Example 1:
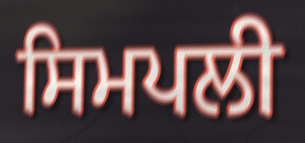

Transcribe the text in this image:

ਸਿਮਪਲੀ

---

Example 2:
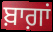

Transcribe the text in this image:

ਬ਼ਾਗ਼ਾਂ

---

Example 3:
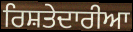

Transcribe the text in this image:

ਰਿਸ਼ਤੇਦਾਰੀਆ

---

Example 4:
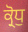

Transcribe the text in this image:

ਕ੍ਰੋਧੁ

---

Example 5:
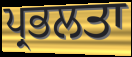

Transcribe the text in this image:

ਪ੍ਰਭਲਤਾ